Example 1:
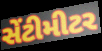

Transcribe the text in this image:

સેંટીમીટર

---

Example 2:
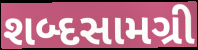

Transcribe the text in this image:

શબ્દસામગ્રી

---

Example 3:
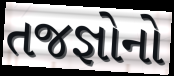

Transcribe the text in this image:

તજજ્ઞોનો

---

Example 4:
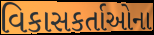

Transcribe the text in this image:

વિકાસકર્તાઓના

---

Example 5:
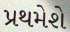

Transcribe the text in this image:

પ્રથમેશે